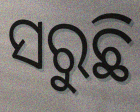
ସରୁଛି